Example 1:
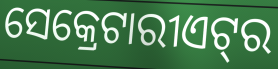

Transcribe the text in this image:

ସେକ୍ରେଟାରୀଏଟ୍‍ର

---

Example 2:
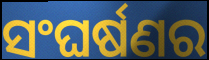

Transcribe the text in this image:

ସଂଘର୍ଷଣର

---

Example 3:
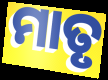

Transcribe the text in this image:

ମାତୃ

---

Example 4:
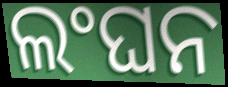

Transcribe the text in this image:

ଲଂଘନ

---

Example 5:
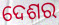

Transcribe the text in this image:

ଦେଶର